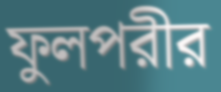
ফুলপরীর